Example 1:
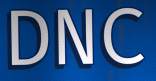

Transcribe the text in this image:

DNC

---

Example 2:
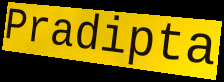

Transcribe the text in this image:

Pradipta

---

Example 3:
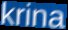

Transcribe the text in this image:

krina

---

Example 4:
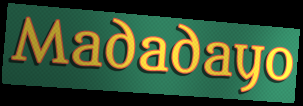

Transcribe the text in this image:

Madadayo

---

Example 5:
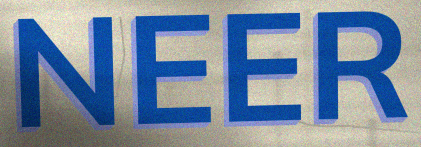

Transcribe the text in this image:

NEER